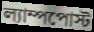
ল্যাম্পপোস্ট